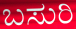
ಬಸುರಿ